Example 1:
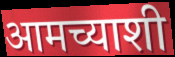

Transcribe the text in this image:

आमच्याशी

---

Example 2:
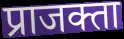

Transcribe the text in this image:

प्राजक्ता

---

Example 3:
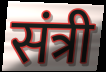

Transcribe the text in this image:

संत्री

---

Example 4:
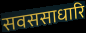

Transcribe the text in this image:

सवससाधारि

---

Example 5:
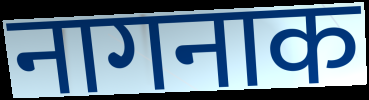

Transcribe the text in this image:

नागनाक